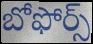
బోఫోర్స్